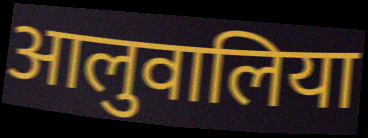
आलुवालिया